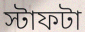
স্টাফটা